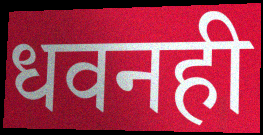
धवनही